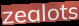
zealots